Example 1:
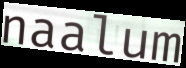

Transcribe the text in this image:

naalum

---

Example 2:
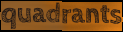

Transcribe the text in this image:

quadrants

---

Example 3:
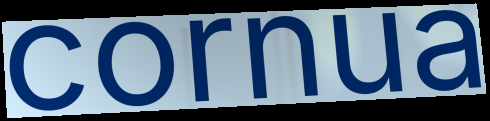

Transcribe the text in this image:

cornua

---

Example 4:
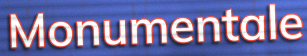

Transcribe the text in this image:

Monumentale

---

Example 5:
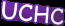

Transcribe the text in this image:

UCHC